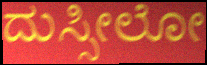
ದುಸ್ಸೀಲೋ